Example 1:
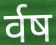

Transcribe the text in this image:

र्वष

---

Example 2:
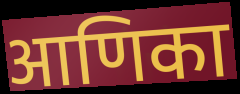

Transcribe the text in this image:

आणिका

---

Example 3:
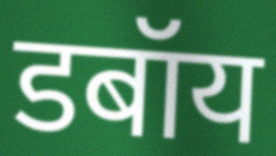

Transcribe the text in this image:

डबॉय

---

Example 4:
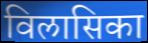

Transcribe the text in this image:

विलासिका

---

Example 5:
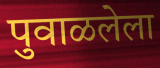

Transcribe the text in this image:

पुवाळलेला